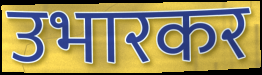
उभारकर